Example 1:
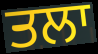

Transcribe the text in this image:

ਤਲਾ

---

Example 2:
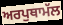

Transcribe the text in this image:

ਅਰਪੁਥਾਮੱਲ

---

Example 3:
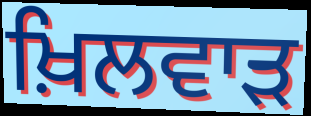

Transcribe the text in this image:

ਖ਼ਿਲਵਾੜ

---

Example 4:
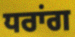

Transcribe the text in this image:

ਧਰਾਂਗ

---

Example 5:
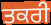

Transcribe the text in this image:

ਤਕਰੀ